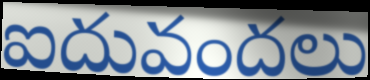
ఐదువందలు